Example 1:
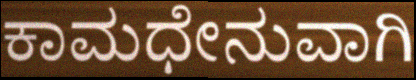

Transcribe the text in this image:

ಕಾಮಧೇನುವಾಗಿ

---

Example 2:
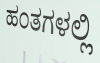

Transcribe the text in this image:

ಹಂತಗಳಲ್ಲಿ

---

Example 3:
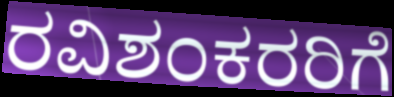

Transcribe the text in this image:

ರವಿಶಂಕರರಿಗೆ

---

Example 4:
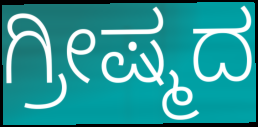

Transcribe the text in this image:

ಗ್ರೀಷ್ಮದ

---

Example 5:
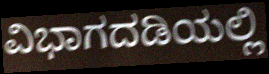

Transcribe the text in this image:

ವಿಭಾಗದಡಿಯಲ್ಲಿ